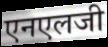
एनएलजी